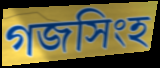
গজসিংহ